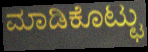
ಮಾಡಿಕೊಟ್ಟು